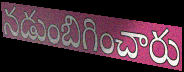
నడుంబిగించారు